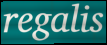
regalis